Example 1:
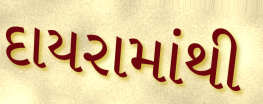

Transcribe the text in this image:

દાયરામાંથી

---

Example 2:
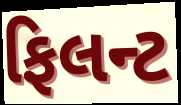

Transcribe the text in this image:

ફિલન્ટ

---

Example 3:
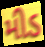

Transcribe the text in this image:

મીડ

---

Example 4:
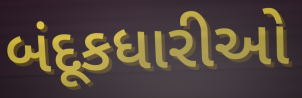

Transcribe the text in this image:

બંદૂકધારીઓ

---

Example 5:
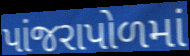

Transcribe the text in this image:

પાંજરાપોળમાં